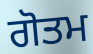
ਗੋਤਮ